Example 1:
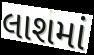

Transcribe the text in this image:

લાશમાં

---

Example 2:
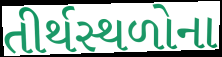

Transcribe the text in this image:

તીર્થસ્થળોના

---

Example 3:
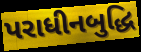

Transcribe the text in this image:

પરાધીનબુદ્ધિ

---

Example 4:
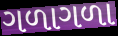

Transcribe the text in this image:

ગળાગળા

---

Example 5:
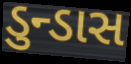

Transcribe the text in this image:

ડુન્ડાસ